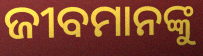
ଜୀବମାନଙ୍କୁ